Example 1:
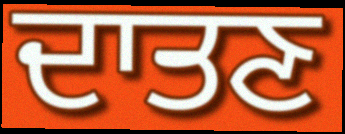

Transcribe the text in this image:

ਦਾਤਣ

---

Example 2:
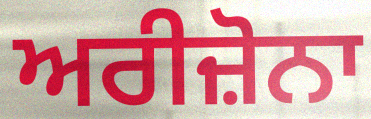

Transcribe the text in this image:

ਅਰੀਜ਼ੋਨਾ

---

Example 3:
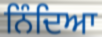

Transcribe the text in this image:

ਨਿੰਦਿਆ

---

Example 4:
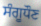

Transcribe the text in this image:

ਸੰਗੂਧੌਣ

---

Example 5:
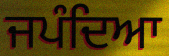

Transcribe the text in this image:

ਜਪੰਦਿਆ